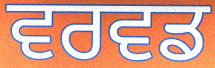
ਵਰਵਡ